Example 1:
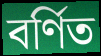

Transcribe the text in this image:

বর্ণিত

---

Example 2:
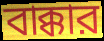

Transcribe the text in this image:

বাক্কার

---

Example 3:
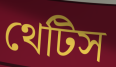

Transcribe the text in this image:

থেটিস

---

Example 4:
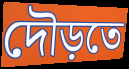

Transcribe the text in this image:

দৌড়তে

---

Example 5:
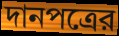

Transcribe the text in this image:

দানপত্রের